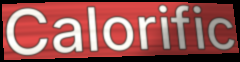
Calorific